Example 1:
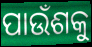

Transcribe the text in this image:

ପାଉଁଶକୁ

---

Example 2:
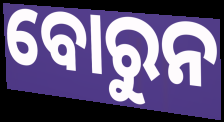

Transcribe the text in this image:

ବୋରୁନ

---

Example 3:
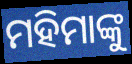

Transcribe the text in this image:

ମହିମାଙ୍କୁ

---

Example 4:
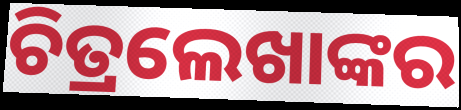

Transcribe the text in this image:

ଚିତ୍ରଲେଖାଙ୍କର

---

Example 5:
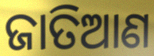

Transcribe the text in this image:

ଜାତିଆଣ